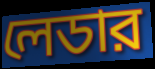
লেডার